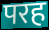
परह